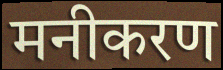
मनीकरण